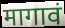
मागावं